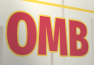
OMB